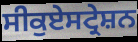
ਸੀਕੁਏਸਟ੍ਰੇਸ਼ਨ